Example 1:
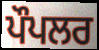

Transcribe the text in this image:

ਪੌਪਲਰ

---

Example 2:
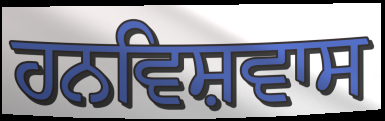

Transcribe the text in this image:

ਹਨਵਿਸ਼ਵਾਸ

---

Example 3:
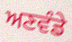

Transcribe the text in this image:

ਅਣਵੰਡੇ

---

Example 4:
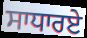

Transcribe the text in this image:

ਸਾਧਾਰਏ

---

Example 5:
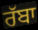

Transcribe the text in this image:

ਰੱਬਾ